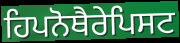
ਹਿਪਨੋਥੈਰੇਪਿਸਟ